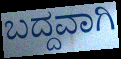
ಬದ್ದವಾಗಿ